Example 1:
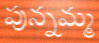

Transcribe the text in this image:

పున్నమ్మ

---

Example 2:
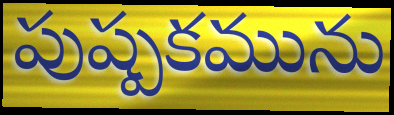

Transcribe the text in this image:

పుష్పకమును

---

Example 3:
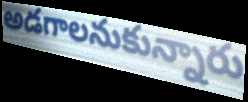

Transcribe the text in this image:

అడగాలనుకున్నారు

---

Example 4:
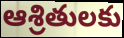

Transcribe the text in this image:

ఆశ్రితులకు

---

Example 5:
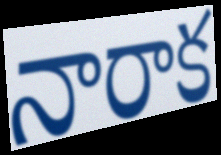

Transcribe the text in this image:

నారాక